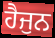
ਹੈਜੁਨ